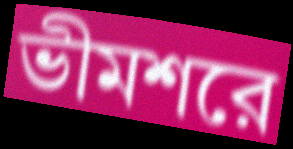
ভীমশরে